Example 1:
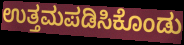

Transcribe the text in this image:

ಉತ್ತಮಪಡಿಸಿಕೊಂಡು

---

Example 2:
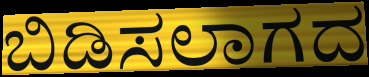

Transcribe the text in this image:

ಬಿಡಿಸಲಾಗದ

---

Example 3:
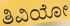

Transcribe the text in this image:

ತಿವಿಯೋ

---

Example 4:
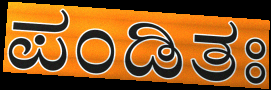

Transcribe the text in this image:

ಪಂಡಿತಃ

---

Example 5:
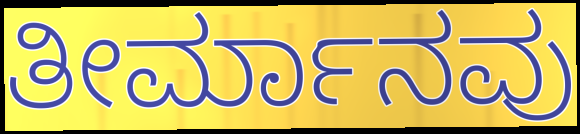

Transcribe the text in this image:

ತೀರ್ಮಾನವು